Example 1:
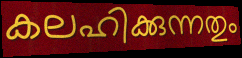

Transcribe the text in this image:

കലഹിക്കുന്നതും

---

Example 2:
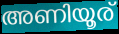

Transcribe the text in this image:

അണിയൂര്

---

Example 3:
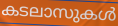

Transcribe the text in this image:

കടലാസുകൾ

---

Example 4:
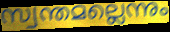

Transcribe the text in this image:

സ്വന്തമല്ലെന്നും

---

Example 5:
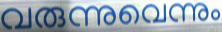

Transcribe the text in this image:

വരുന്നുവെന്നും